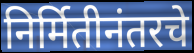
निर्मितीनंतरचे